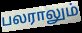
பலராலும்